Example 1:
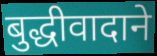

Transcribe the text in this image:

बुद्धीवादाने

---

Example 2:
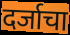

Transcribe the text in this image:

दर्जाचा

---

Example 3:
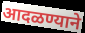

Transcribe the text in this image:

आदळण्याने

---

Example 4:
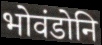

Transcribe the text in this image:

भोवंडोनि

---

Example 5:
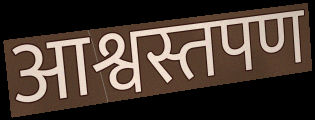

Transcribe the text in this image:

आश्वस्तपण